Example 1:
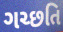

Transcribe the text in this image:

ગચ્છતિ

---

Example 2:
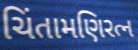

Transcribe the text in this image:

ચિંતામણિરત્ન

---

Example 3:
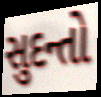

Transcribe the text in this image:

સુદન્તો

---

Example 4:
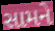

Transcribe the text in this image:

સામને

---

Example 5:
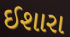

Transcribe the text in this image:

ઈશારા